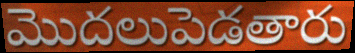
మొదలుపెడతారు